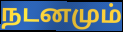
நடனமும்